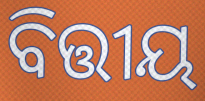
ବିତ୍ତୀୟ